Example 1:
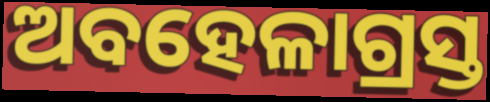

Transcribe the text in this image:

ଅବହେଳାଗ୍ରସ୍ତ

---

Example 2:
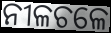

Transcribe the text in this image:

ନୀଳଚଳେ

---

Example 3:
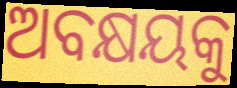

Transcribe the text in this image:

ଅବକ୍ଷୟକୁ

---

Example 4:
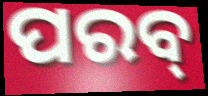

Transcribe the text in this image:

ପରବ୍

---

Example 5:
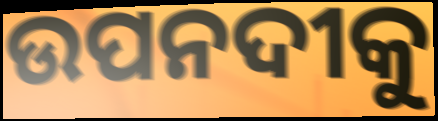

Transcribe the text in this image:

ଉପନଦୀକୁ